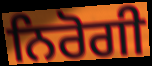
ਨਿਰੋਗੀ